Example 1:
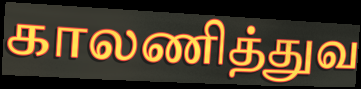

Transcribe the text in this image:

காலணித்துவ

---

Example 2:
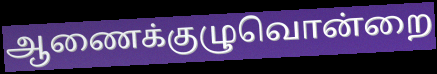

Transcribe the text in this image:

ஆணைக்குழுவொன்றை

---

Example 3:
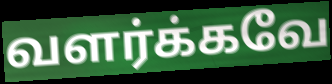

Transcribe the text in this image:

வளர்க்கவே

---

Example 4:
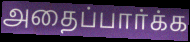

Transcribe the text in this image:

அதைப்பார்க்க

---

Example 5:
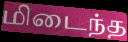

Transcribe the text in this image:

மிடைந்த